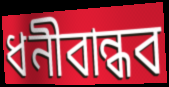
ধনীবান্ধব